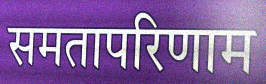
समतापरिणाम